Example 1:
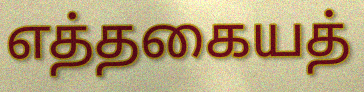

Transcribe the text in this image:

எத்தகையத்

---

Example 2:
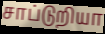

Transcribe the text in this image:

சாப்டுறியா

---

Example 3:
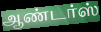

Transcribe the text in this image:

ஆண்டர்ஸ்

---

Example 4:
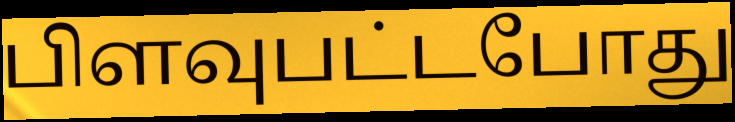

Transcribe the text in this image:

பிளவுபட்டபோது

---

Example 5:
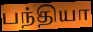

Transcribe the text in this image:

பந்தியா